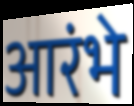
आरंभे